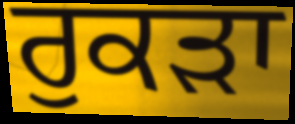
ਰੁਕੜਾ